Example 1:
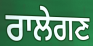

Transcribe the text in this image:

ਰਾਲੇਗਣ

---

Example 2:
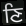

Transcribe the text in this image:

ਣਿ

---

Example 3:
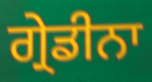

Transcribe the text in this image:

ਗ੍ਰੇਡੀਨਾ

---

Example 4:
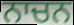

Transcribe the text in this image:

ਨਾਚਨ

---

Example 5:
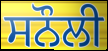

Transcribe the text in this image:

ਸਨੌਲੀ